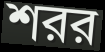
শরর